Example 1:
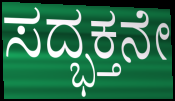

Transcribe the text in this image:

ಸದ್ಭಕ್ತನೇ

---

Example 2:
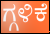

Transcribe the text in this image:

ಗ್ಗಳಿಕೆ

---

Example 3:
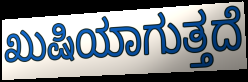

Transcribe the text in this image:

ಖುಷಿಯಾಗುತ್ತದೆ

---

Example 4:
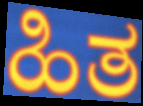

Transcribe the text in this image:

ಹಿತ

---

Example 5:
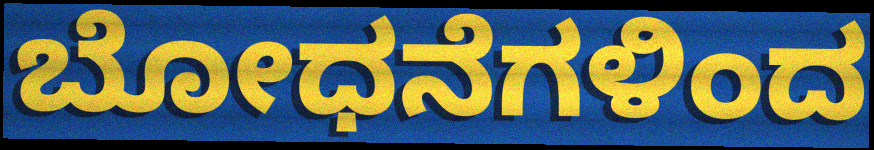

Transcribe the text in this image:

ಬೋಧನೆಗಳಿಂದ